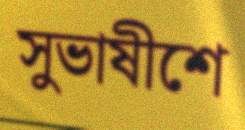
সুভাষীশে